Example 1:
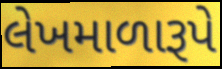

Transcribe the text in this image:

લેખમાળારૂપે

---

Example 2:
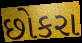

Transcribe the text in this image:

છોકરા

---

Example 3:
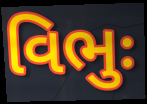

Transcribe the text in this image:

વિભુઃ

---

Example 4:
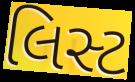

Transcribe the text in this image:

લિસ્ટ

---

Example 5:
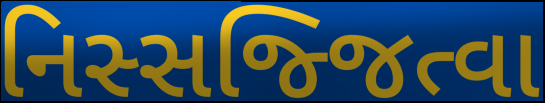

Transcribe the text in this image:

નિસ્સજ્જિત્વા